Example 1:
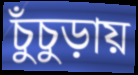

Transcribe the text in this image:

চুঁচুড়ায়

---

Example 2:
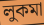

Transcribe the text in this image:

লুকমা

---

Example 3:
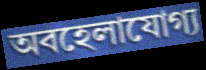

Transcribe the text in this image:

অবহেলাযোগ্য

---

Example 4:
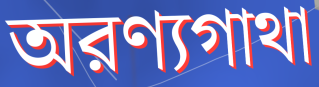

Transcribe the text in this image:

অরণ্যগাথা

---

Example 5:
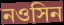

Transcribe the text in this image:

নওসিন